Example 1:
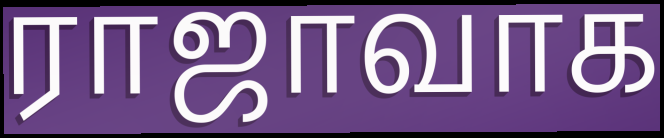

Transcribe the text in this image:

ராஜாவாக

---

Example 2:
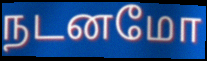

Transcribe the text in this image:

நடனமோ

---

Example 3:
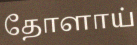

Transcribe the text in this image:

தோளாய்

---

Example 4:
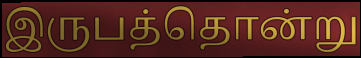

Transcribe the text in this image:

இருபத்தொன்று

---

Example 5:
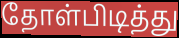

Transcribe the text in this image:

தோள்பிடித்து